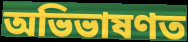
অভিভাষণত